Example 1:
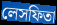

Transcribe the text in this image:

লেসফিতা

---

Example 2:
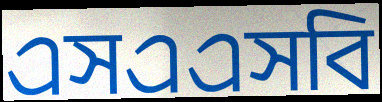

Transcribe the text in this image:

এসএএসবি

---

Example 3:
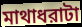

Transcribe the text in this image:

মাথাধরাটা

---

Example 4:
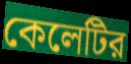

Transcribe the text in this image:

কেলেটির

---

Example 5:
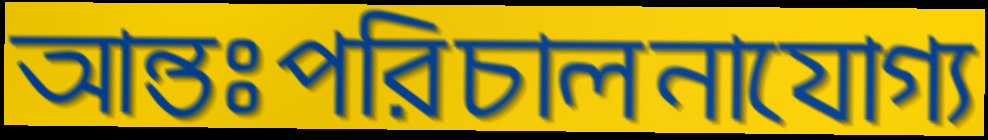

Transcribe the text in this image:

আন্তঃপরিচালনাযোগ্য